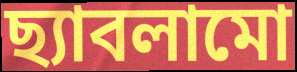
ছ্যাবলামো